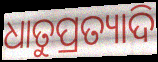
ଧାତୁପ୍ରତ୍ୟାଦି